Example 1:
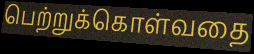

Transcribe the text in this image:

பெற்றுக்கொள்வதை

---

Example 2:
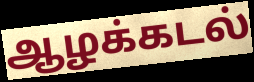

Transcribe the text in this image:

ஆழக்கடல்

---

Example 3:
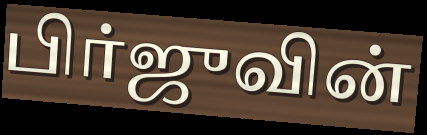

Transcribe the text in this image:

பிர்ஜுவின்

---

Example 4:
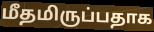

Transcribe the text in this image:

மீதமிருப்பதாக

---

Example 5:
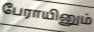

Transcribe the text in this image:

பேராயினும்